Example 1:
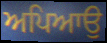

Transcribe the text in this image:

ਅਪਿਆਉ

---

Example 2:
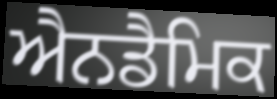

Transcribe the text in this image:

ਐਨਡੈਮਿਕ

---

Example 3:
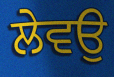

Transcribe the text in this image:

ਲੇਵਉ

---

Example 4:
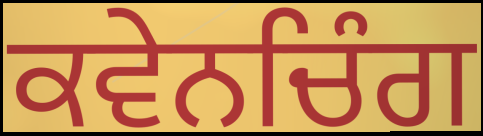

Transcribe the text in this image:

ਕਵੇਨਚਿੰਗ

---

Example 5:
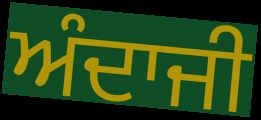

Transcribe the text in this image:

ਅੰਦਾਜੀ